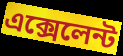
এক্সেলেন্ট